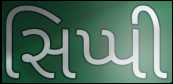
સિપ્પી